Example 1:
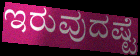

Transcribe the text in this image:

ಇರುವುದಷ್ಟೆ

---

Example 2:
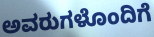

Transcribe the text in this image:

ಅವರುಗಳೊಂದಿಗೆ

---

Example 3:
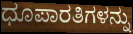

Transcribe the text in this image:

ಧೂಪಾರತಿಗಳನ್ನು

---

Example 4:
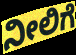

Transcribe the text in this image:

ನೀಲಿಗೆ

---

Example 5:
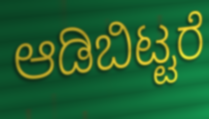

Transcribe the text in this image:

ಆಡಿಬಿಟ್ಟರೆ